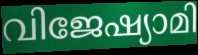
വിജേഷ്യാമി